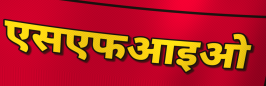
एसएफआइओ